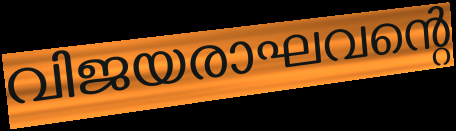
വിജയരാഘവന്റെ